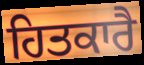
ਹਿਤਕਾਰੈ